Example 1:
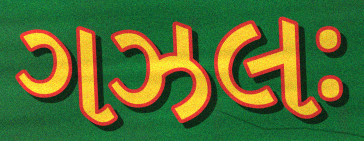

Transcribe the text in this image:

ગઝલઃ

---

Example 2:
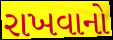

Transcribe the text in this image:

રાખવાનો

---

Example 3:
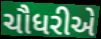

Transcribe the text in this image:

ચૌધરીએ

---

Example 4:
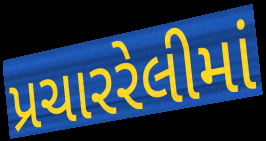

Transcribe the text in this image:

પ્રચારરેલીમાં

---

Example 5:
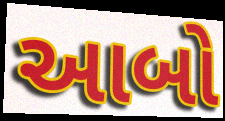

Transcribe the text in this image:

આબો